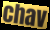
chav